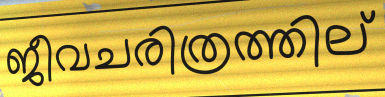
ജീവചരിത്രത്തില്